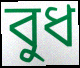
বুধ